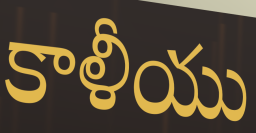
కాళీయు